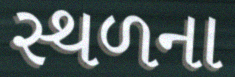
સ્થળના